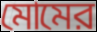
মোমের